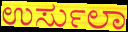
ಉರ್ಸುಲಾ